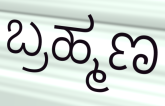
ಬ್ರಹ್ಮಣ